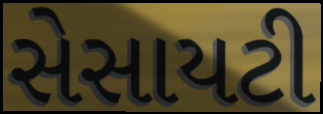
સેસાયટી